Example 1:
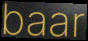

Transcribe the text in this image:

baar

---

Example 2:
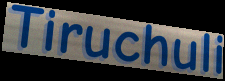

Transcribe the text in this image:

Tiruchuli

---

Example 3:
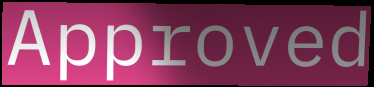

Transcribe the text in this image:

Approved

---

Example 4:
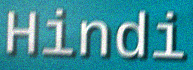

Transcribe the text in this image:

Hindi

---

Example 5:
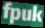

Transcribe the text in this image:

fpuk